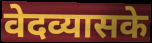
वेदव्यासके